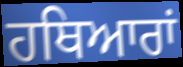
ਹਥਿਆਰਾਂ